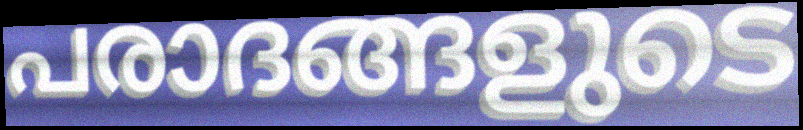
പരാദങ്ങളുടെ